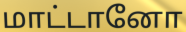
மாட்டானோ